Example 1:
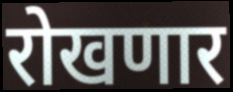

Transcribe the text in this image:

रोखणार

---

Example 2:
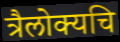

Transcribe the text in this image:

त्रैलोक्यचि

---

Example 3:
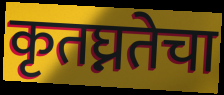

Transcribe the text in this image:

कृतघ्नतेचा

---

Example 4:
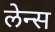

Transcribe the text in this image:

लेन्स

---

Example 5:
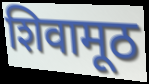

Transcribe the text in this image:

शिवामूठ